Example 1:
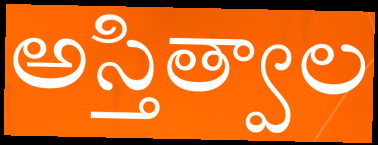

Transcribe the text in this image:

అస్తిత్వాల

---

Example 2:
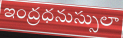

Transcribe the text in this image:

ఇంద్రధనుస్సులా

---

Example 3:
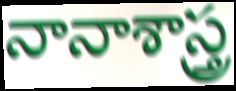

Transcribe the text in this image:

నానాశాస్త్ర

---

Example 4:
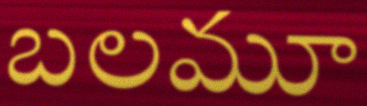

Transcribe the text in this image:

బలమూ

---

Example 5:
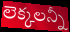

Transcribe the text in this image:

లెక్కలన్నీ